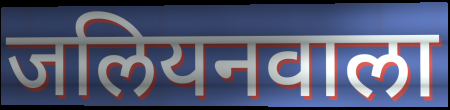
जलियनवाला